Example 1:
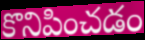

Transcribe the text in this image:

కొనిపించడం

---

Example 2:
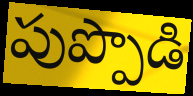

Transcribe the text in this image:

పుప్పొడి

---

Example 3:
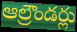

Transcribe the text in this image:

ఆల్రౌండర్లు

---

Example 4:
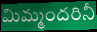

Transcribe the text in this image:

మిమ్మందరినీ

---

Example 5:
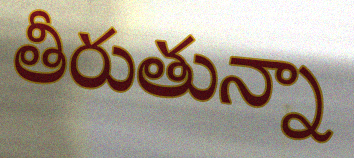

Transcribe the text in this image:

తీరుతున్నా